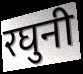
रघुनी